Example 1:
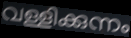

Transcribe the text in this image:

വള്ളിക്കുന്നം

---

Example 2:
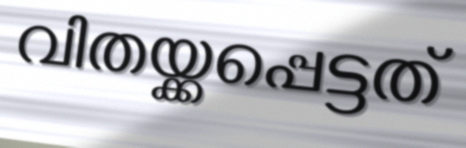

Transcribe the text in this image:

വിതയ്ക്കപ്പെട്ടത്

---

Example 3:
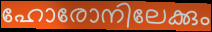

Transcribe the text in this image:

ഹോരോനിലേക്കും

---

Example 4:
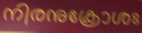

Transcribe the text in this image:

നിരനുക്രോശഃ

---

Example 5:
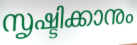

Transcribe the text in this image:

സൃഷ്ടിക്കാനും